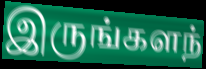
இருங்களந்